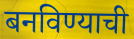
बनविण्याची